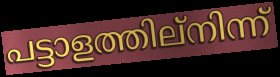
പട്ടാളത്തില്നിന്ന്